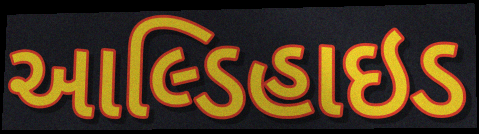
આલ્ડિહાઇડ